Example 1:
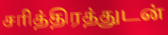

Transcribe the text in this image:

சரித்திரத்துடன்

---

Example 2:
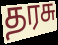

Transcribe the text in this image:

தரசு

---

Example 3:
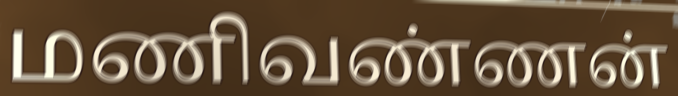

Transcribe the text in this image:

மணிவண்ணன்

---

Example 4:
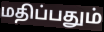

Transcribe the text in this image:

மதிப்பதும்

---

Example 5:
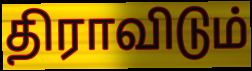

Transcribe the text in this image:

திராவிடும்